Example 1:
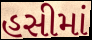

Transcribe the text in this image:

હસીમાં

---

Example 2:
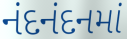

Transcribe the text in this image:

નંદનંદનમાં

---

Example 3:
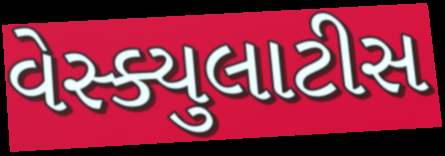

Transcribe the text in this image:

વેસ્ક્યુલાટીસ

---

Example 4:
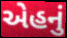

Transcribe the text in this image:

એહનું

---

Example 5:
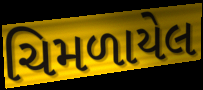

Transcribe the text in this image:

ચિમળાયેલ